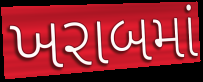
ખરાબમાં